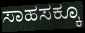
ಸಾಹಸಕ್ಕೂ